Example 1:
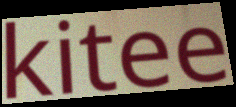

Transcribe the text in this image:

kitee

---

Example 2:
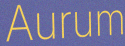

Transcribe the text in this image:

Aurum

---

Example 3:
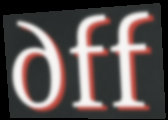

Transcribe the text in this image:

dff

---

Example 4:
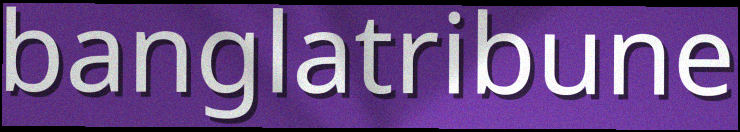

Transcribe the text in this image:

banglatribune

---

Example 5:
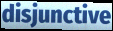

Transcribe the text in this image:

disjunctive